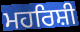
ਮਹਰਿਸ਼ੀ